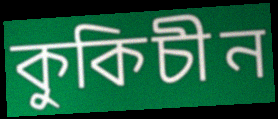
কুকিচীন